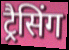
ट्रैसिंग